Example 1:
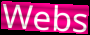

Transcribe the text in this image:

Webs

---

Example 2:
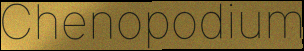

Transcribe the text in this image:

Chenopodium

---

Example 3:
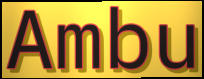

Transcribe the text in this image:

Ambu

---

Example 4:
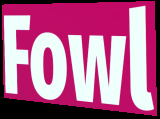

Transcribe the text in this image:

Fowl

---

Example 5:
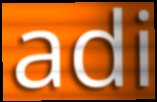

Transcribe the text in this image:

adi